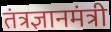
तंत्रज्ञानमंत्री